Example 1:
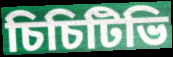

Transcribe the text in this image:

চিচিটিভি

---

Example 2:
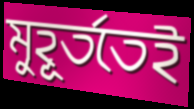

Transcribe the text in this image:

মুহূৰ্ততেই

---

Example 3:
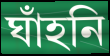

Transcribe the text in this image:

ঘাঁহনি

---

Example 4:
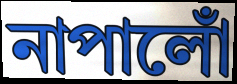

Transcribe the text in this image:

নাপালোঁ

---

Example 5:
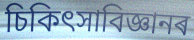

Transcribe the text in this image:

চিকিৎসাবিজ্ঞানৰ